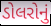
ડોલરોનું